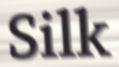
Silk